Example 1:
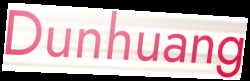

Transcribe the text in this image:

Dunhuang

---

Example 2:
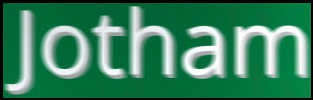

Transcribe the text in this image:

Jotham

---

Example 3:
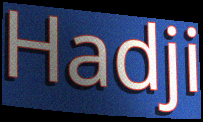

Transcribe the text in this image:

Hadji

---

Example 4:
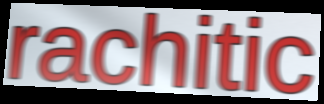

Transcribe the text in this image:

rachitic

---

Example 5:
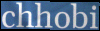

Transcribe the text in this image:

chhobi